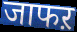
जाफऱ